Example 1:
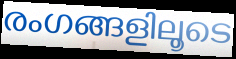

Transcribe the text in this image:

രംഗങ്ങളിലൂടെ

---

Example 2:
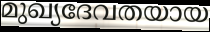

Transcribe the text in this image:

മുഖ്യദേവതയായ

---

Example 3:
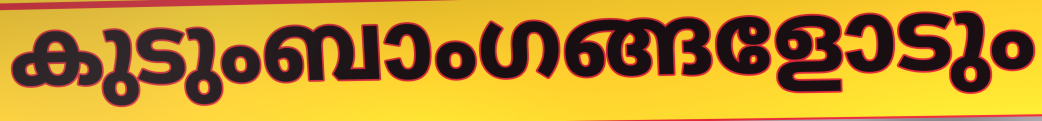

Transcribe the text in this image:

കുടുംബാംഗങ്ങളോടും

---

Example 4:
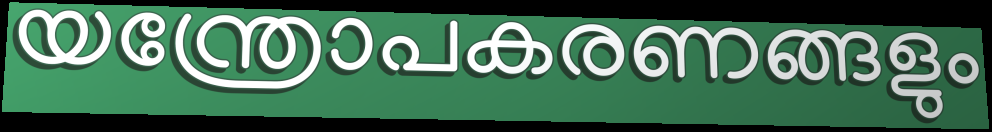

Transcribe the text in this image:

യന്ത്രോപകരണങ്ങളും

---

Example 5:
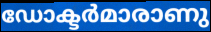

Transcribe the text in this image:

ഡോക്ടർമാരാണു